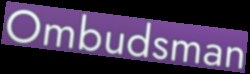
Ombudsman